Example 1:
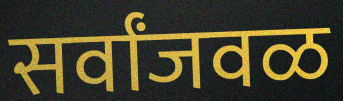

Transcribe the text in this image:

सर्वांजवळ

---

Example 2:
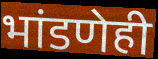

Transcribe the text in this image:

भांडणेही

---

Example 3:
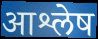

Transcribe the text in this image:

आश्लेष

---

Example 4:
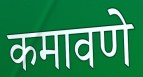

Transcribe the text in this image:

कमावणे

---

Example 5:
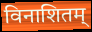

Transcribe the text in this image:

विनाशितम्